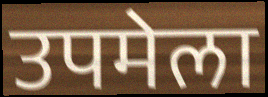
उपमेला